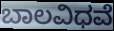
ಬಾಲವಿಧವೆ